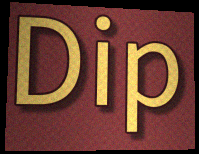
Dip